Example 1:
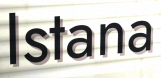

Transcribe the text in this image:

Istana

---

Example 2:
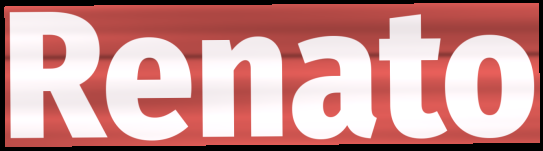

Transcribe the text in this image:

Renato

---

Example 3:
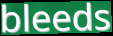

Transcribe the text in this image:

bleeds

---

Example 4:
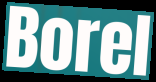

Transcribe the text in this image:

Borel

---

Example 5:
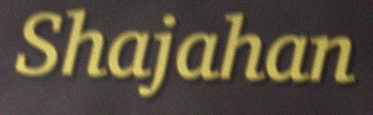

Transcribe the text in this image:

Shajahan